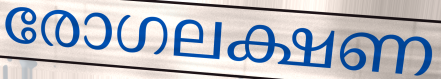
രോഗലക്ഷണ